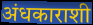
अंधकाराशी